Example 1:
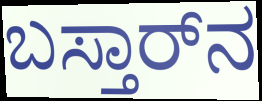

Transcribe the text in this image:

ಬಸ್ತಾರ್‌ನ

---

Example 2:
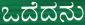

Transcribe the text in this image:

ಒದೆದನು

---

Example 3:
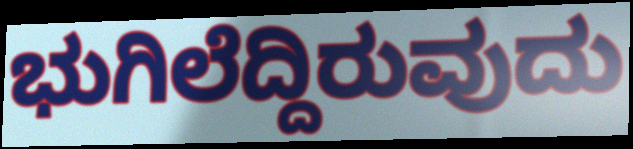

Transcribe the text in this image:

ಭುಗಿಲೆದ್ದಿರುವುದು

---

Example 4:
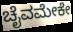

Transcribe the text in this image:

ಚೈವಮೇಕೇ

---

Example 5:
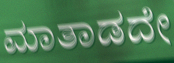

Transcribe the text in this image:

ಮಾತಾಡದೇ